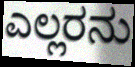
ಎಲ್ಲರನು